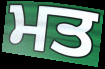
ਮਤ